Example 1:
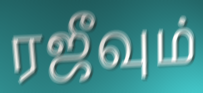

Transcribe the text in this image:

ரஜீவும்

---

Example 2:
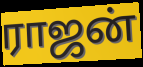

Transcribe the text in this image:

ராஜன்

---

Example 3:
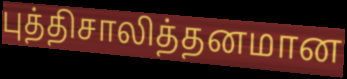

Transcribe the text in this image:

புத்திசாலித்தனமான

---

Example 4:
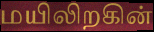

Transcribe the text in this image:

மயிலிறகின்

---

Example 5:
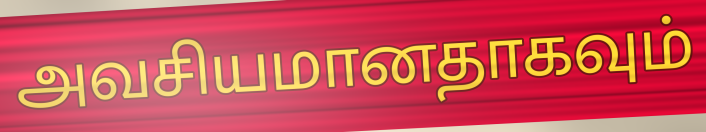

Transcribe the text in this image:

அவசியமானதாகவும்